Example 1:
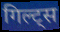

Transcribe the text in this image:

गिल्ट्स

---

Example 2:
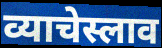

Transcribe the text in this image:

व्याचेस्लाव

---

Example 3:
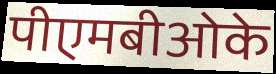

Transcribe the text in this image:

पीएमबीओके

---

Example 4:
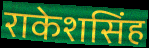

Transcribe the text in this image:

राकेशसिंह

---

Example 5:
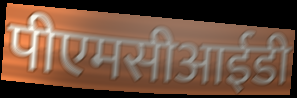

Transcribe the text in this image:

पीएमसीआईडी